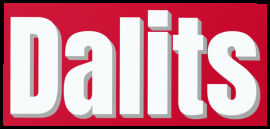
Dalits